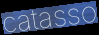
catasso